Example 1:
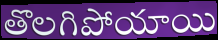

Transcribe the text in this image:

తొలగిపోయాయి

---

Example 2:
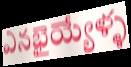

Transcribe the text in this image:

ఎనభైయ్యేళ్ళ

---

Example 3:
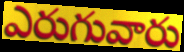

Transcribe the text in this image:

ఎరుగువారు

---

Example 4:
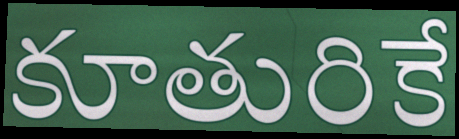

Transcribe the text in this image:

కూతురికే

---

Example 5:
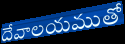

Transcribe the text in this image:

దేవాలయముతో